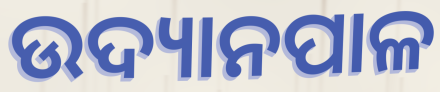
ଉଦ୍ୟାନପାଳ